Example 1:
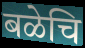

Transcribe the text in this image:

बळेचि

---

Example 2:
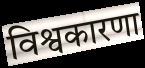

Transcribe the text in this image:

विश्वकारणा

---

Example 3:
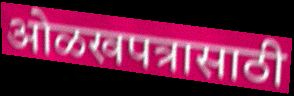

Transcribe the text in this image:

ओळखपत्रासाठी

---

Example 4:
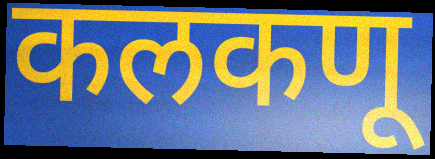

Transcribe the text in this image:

कलकणू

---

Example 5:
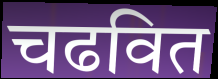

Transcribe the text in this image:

चढवित